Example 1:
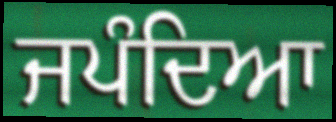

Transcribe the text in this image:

ਜਪੰਦਿਆ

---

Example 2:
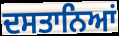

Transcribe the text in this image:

ਦਸਤਾਨਿਆਂ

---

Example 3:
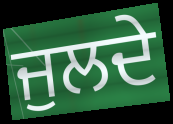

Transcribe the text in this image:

ਜੁਲਦੇ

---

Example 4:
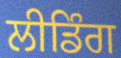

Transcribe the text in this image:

ਲੀਡਿੰਗ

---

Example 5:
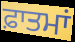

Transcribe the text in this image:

ਫ਼ਾਤਮਾਂ